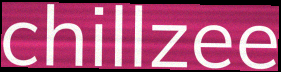
chillzee